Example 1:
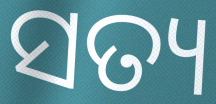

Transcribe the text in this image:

ସତ୍ୟ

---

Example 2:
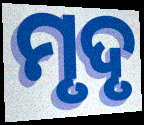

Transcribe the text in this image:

ମୃଦୃ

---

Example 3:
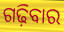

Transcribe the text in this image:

ଗଢ଼ିବାର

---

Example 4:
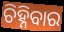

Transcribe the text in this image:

ଚିହ୍ନିବାର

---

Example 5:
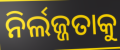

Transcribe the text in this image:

ନିର୍ଲଜ୍ଜତାକୁ